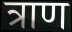
त्राण